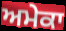
ਅਮੇਕਾ